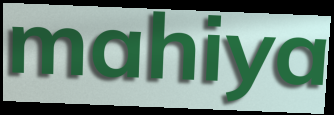
mahiya